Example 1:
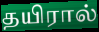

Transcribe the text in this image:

தயிரால்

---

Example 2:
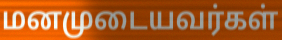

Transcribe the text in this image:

மனமுடையவர்கள்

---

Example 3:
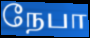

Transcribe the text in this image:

நேபா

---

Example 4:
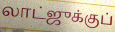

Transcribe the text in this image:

லாட்ஜுக்குப்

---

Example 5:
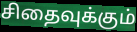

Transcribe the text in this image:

சிதைவுக்கும்